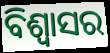
ବିଶ୍ବାସର